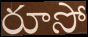
రూసో